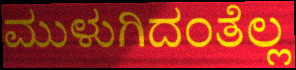
ಮುಳುಗಿದಂತೆಲ್ಲ